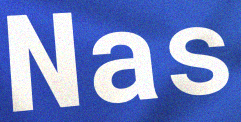
Nas